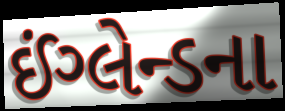
ઈંગ્લેન્ડના